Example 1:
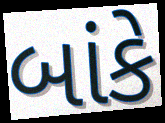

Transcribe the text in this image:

બાંકે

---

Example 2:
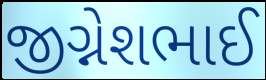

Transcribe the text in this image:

જીગ્નેશભાઈ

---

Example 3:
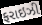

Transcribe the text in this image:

ફરાઇઝી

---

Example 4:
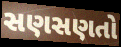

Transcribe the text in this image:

સણસણતો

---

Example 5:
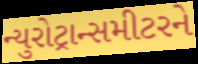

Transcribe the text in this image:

ન્યુરોટ્રાન્સમીટરને